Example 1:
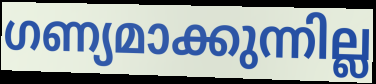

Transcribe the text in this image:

ഗണ്യമാക്കുന്നില്ല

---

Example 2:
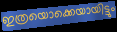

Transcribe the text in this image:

ഇത്രയൊക്കെയായിട്ടും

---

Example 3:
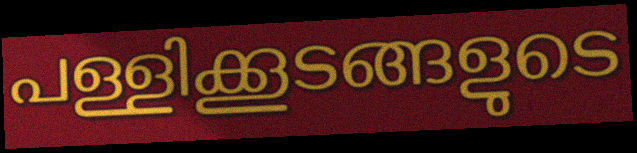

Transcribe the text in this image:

പള്ളിക്കൂടങ്ങളുടെ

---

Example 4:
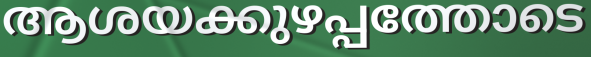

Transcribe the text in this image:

ആശയക്കുഴപ്പത്തോടെ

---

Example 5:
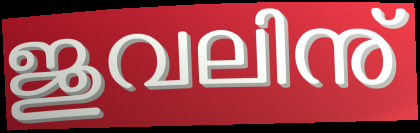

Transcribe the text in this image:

ജുവലിനു്